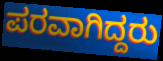
ಪರವಾಗಿದ್ದರು